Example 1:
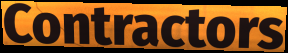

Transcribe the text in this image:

Contractors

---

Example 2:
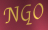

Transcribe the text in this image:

NGO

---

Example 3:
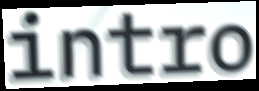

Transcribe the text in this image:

intro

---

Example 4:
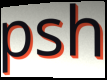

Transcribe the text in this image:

psh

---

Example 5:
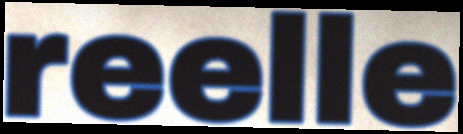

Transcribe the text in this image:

reelle